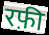
रफ़ी